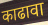
काढावा